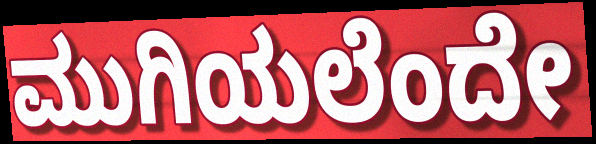
ಮುಗಿಯಲೆಂದೇ